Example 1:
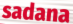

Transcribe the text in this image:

sadana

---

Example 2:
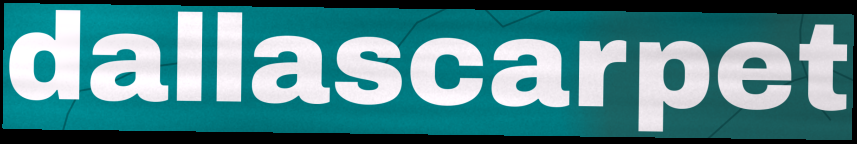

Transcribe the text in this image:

dallascarpet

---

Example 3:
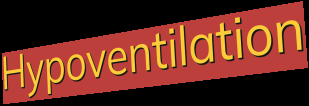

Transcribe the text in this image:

Hypoventilation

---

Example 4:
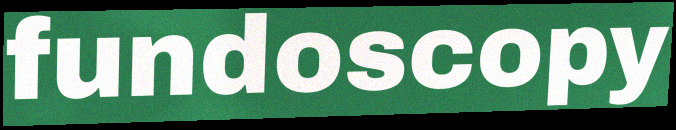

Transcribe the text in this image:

fundoscopy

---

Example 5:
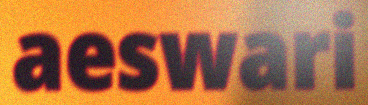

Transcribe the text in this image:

aeswari